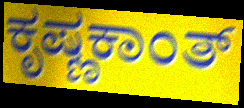
ಕೃಷ್ಣಕಾಂತ್